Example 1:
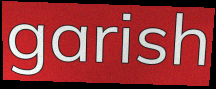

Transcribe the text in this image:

garish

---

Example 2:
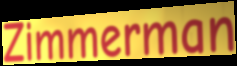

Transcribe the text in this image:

Zimmerman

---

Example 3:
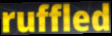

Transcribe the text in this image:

ruffled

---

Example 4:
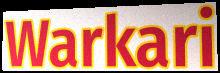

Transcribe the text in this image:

Warkari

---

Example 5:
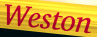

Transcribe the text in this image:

Weston